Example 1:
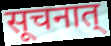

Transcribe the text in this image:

सूचनात्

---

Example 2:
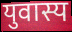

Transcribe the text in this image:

युवास्य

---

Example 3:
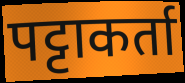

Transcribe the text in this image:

पट्टाकर्ता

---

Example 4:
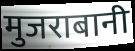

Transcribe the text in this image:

मुजराबानी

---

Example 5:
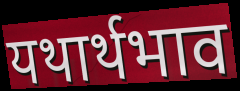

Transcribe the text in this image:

यथार्थभाव